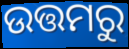
ଉତ୍ତମରୁ